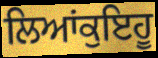
ਲਿਆਂਕੁਇਹੂ